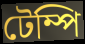
টেম্পি